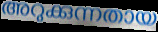
അറുക്കുന്നതായ